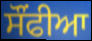
ਸੌਂਫੀਆ